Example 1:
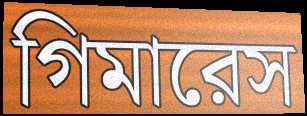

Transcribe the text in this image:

গিমারেস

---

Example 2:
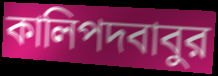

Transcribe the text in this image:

কালিপদবাবুর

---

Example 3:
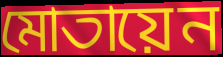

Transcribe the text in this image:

মোতায়েন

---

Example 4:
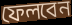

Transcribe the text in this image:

ফেলবেন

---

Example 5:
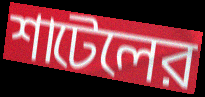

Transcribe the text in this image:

শাটেলের